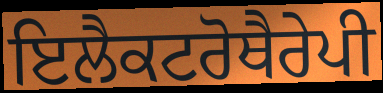
ਇਲੈਕਟਰੋਥੈਰੇਪੀ